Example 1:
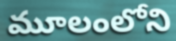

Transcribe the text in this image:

మూలంలోని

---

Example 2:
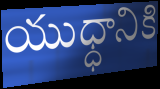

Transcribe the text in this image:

యుధ్ధానికి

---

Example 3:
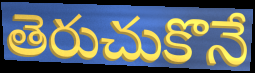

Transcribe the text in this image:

తెరుచుకొనే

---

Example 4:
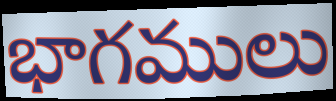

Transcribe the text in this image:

భాగములు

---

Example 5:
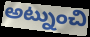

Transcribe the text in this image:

అట్నుంచి